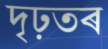
দৃঢ়তৰ